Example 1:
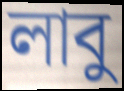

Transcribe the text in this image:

লাবু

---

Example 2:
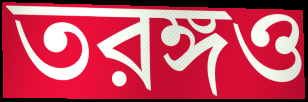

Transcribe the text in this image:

তরঙ্গও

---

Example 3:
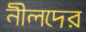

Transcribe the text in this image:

নীলদের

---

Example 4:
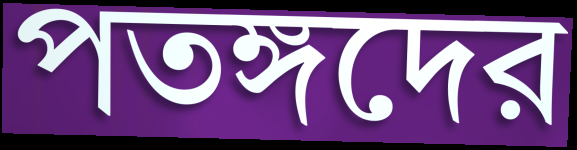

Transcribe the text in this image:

পতঙ্গদের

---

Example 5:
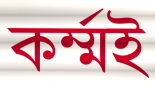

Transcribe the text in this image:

কর্ম্মই